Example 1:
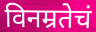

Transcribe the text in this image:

विनम्रतेचं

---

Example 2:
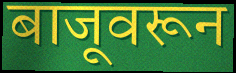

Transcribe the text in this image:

बाजूवरून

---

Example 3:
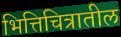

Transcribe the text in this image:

भित्तिचित्रातील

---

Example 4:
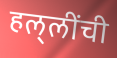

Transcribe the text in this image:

हल्लींची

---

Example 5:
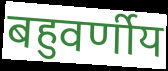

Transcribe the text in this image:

बहुवर्णीय